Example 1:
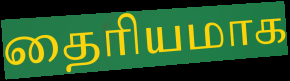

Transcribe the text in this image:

தைரியமாக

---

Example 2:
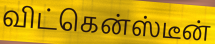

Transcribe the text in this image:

விட்கென்ஸ்டீன்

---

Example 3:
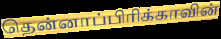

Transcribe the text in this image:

தென்னாப்பிரிக்காவின்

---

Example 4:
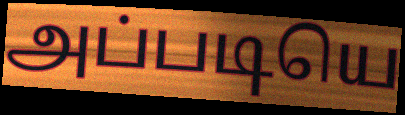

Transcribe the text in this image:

அப்படியெ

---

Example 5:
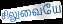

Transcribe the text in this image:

சிலுவையே